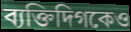
ব্যক্তিদিগকেও